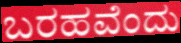
ಬರಹವೆಂದು